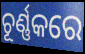
ଚୂର୍ଣ୍ଣକରେ